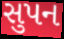
સુપન